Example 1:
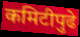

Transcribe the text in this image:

कमिटीपुढे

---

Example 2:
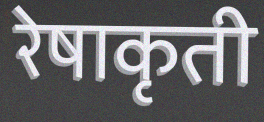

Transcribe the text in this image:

रेषाकृती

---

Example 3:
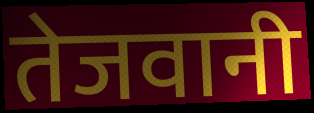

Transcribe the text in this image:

तेजवानी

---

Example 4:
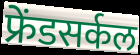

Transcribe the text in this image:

फ्रेंडसर्कल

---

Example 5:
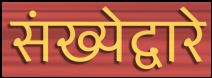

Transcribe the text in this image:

संख्येद्वारे